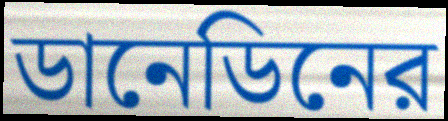
ডানেডিনের